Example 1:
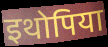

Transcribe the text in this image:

इथोपिया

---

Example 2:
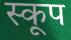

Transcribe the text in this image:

स्कूप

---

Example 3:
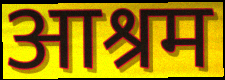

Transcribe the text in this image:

आश्रम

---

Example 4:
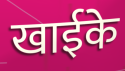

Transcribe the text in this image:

खाईके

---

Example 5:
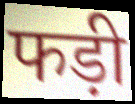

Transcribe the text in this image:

फड़ी